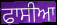
ਫਾਸੀਆ